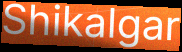
Shikalgar